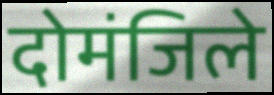
दोमंजिले